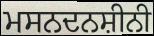
ਮਸਨਦਨਸ਼ੀਨੀ